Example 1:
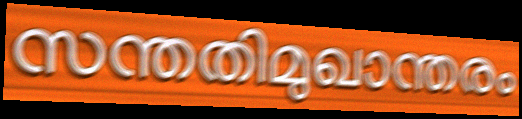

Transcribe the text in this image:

സന്തതിമുഖാന്തരം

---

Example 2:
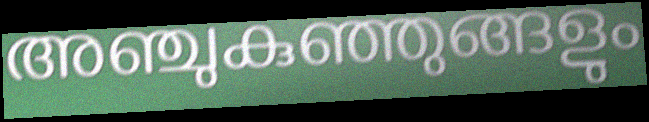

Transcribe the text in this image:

അഞ്ചുകുഞ്ഞുങ്ങളും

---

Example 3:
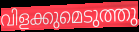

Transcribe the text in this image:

വിളക്കുമെടുത്തു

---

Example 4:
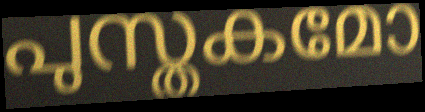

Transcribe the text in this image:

പുസ്തകമോ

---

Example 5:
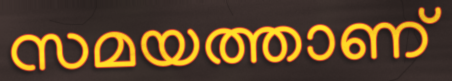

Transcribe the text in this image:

സമയത്താണ്